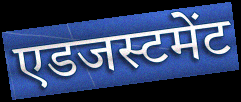
एडजस्‍टमेंट